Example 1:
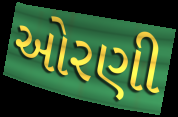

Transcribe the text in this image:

ઓરણી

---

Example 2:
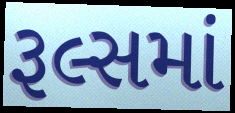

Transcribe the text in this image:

રૂલ્સમાં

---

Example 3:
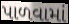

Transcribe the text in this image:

પાળવામાં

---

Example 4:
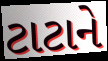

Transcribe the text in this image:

ટાટાને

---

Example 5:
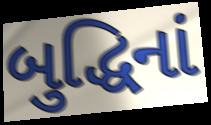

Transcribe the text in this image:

બુદ્ધિનાં